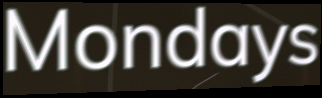
Mondays